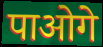
पाओगे